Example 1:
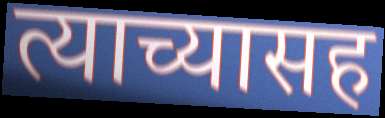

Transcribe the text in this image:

त्याच्यासह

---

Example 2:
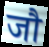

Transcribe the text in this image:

जौ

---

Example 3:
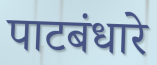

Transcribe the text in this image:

पाटबंधारे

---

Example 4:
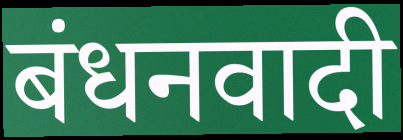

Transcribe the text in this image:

बंधनवादी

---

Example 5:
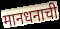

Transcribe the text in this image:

मानधनाची